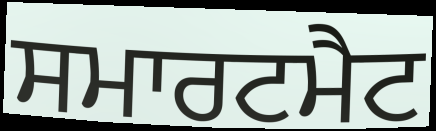
ਸਮਾਰਟਮੈਟ